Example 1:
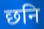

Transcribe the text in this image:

छनि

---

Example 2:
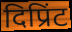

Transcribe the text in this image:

दिप्रिंट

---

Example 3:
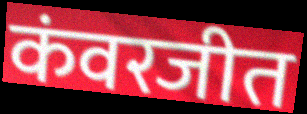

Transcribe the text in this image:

कंवरजीत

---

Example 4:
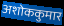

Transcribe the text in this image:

अशोककुमार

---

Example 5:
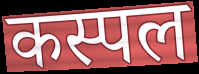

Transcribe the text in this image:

कस्पल